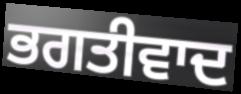
ਭਗਤੀਵਾਦ